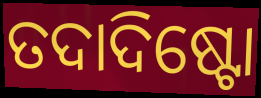
ତଦାଦିଷ୍ଟୋ